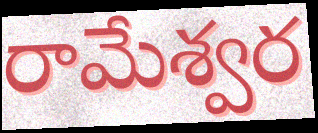
రామేశ్వర